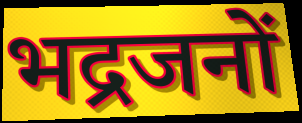
भद्रजनों